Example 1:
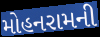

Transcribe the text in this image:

મોહનરામની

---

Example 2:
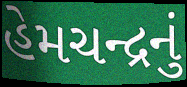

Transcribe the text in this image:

હેમચન્દ્રનું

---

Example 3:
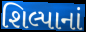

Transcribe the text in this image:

શિલ્પાનાં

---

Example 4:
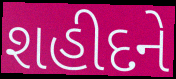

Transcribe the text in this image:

શહીદને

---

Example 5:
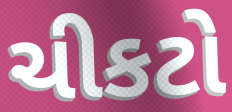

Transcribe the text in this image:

ચીકટો